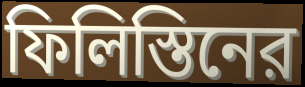
ফিলিস্তিনের